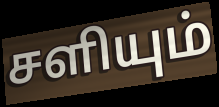
சளியும்